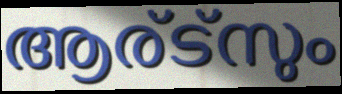
ആര്ട്സും